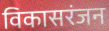
विकासरंजन